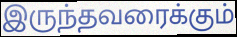
இருந்தவரைக்கும்